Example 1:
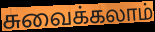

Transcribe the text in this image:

சுவைக்கலாம்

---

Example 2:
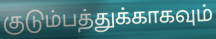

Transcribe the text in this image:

குடும்பத்துக்காகவும்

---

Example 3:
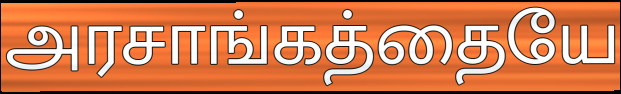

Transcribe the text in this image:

அரசாங்கத்தையே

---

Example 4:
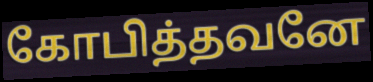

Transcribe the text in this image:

கோபித்தவனே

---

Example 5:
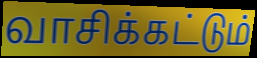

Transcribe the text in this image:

வாசிக்கட்டும்